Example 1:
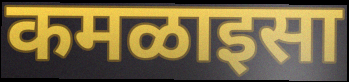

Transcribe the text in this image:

कमळाइसा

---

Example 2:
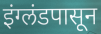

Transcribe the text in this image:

इंग्लंडपासून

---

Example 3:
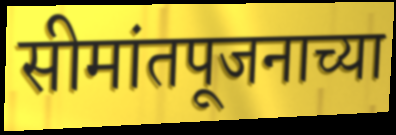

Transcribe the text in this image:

सीमांतपूजनाच्या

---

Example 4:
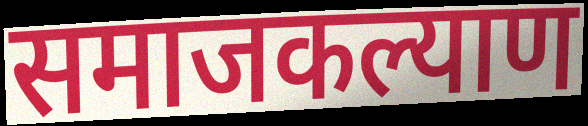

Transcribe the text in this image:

समाजकल्याण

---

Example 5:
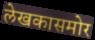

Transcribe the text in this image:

लेखकासमोर